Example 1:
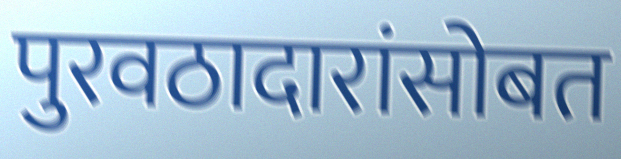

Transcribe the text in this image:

पुरवठादारांसोबत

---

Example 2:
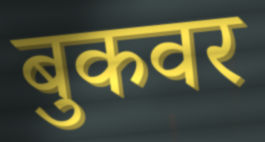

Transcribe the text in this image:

बुकवर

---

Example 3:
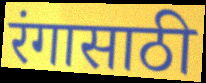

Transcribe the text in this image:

रंगासाठी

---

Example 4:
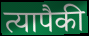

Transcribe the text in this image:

त्यापैकी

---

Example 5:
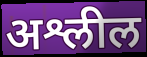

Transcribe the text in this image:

अश्लील